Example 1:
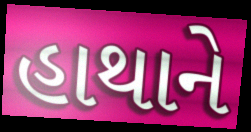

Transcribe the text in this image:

હાથાને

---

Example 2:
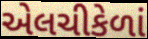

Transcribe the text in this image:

એલચીકેળાં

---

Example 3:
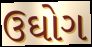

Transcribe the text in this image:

ઉઘોગ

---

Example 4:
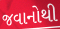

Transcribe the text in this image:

જવાનોથી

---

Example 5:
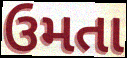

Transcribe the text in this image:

ઉમતા